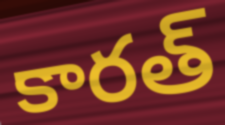
కారత్